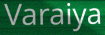
Varaiya